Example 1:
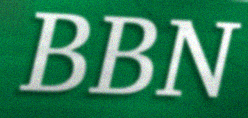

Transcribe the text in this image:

BBN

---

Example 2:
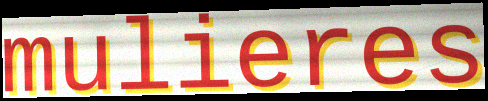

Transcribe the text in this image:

mulieres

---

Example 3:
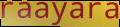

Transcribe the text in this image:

raayara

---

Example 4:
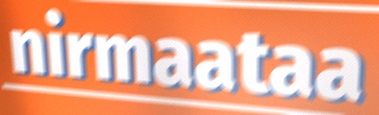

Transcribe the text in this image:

nirmaataa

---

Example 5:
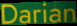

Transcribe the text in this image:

Darian